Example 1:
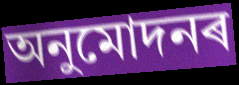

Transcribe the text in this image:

অনুমোদনৰ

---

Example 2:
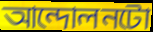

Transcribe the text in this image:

আন্দোলনটো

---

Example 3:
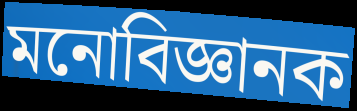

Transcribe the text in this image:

মনোবিজ্ঞানক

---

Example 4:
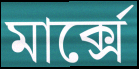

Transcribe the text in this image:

মাৰ্ক্সে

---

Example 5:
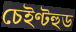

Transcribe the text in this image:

চেইণ্টহুড